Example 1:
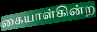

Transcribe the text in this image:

கையாள்கின்ற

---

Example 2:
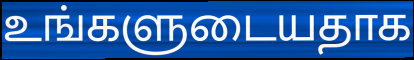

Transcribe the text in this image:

உங்களுடையதாக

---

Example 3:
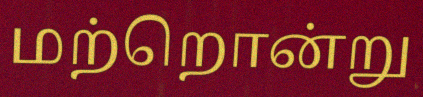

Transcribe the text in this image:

மற்றொன்று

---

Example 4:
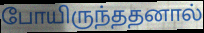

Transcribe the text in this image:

போயிருந்ததனால்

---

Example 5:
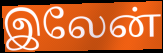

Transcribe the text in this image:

இலேன்